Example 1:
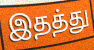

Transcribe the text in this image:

இதத்து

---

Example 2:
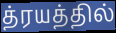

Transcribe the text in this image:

த்ரயத்தில்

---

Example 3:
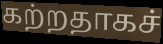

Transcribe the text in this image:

கற்றதாகச்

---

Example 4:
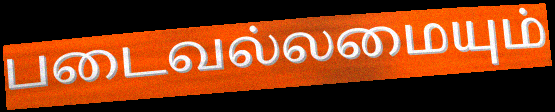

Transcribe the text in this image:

படைவல்லமையும்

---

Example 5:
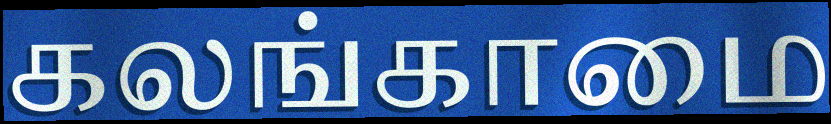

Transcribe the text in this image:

கலங்காமை